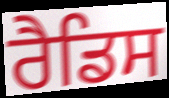
ਰੈਡਿਸ